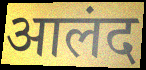
आलंद